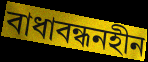
বাধাবন্ধনহীন